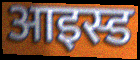
आइस्ड